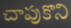
చాపుకొని